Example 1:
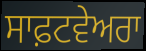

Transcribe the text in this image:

ਸਾਫ਼ਟਵੇਅਰਾ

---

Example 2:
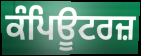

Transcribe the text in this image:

ਕੰਪਿਊਟਰਜ਼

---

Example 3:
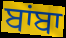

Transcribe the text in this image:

ਬਾਂਬਾ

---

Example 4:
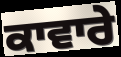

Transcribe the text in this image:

ਕਾਵਾਰੇ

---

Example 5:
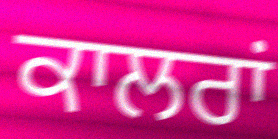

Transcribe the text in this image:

ਕਾਲਰਾਂ